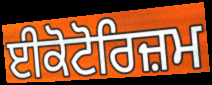
ਈਕੋਟੋਰਿਜ਼ਮ